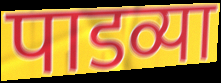
पाडव्या